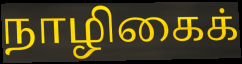
நாழிகைக்